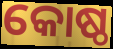
କୋଷ୍ଠ